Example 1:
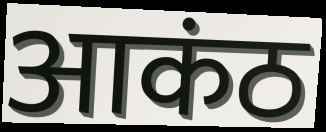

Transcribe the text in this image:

आकंठ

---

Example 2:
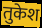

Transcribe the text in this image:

तुकेश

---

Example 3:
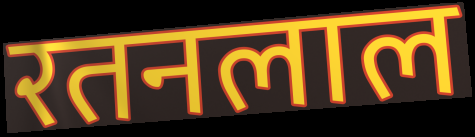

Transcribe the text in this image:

रतनलाल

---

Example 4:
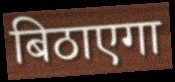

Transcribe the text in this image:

बिठाएगा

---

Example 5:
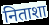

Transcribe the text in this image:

निताशा